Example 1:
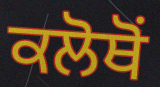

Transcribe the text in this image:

ਕਲੋਥੋਂ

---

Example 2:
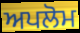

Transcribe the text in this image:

ਅਪਲੋਮ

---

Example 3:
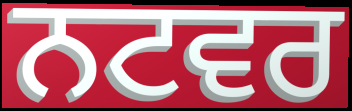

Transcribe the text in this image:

ਨਟਵਰ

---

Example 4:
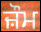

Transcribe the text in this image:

ਜ਼ੌਮ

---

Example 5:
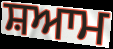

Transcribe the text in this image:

ਸ਼ਆਮ